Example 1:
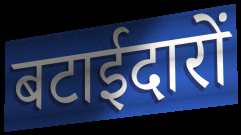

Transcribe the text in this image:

बटाईदारों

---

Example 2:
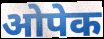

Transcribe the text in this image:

ओपेक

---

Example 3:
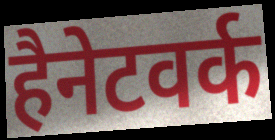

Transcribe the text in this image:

हैनेटवर्क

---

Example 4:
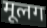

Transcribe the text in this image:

मूलग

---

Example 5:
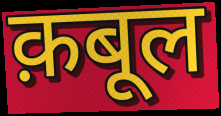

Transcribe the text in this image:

क़बूल